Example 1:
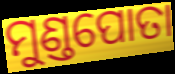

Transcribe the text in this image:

ମୁଣ୍ଡପୋତା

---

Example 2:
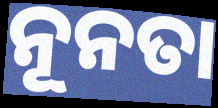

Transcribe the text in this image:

ନୂନତା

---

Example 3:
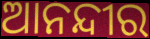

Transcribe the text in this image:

ଆନନ୍ଦୀର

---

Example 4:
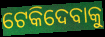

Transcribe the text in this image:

ଟେକିଦେବାକୁ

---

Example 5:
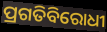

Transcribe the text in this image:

ପ୍ରଗତିବିରୋଧୀ